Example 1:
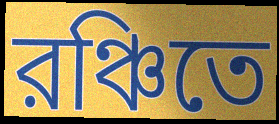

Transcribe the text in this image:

রঞ্চিতে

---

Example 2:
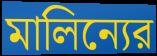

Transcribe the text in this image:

মালিন্যের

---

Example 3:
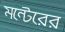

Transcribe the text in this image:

মন্টেরের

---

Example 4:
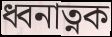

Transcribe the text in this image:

ধ্বনাত্নক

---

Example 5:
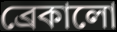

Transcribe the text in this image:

ব্রেকালো